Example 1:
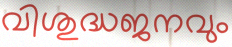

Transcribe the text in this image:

വിശുദ്ധജനവും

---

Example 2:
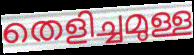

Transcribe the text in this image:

തെളിച്ചമുള്ള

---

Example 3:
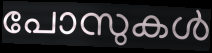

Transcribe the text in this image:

പോസുകൾ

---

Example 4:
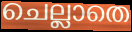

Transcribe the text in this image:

ചെല്ലാതെ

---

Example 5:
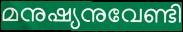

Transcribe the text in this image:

മനുഷ്യനുവേണ്ടി